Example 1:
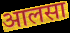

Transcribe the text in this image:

आलसा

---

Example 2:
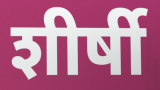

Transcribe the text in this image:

शीर्षी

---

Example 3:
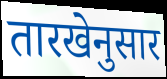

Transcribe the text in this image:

तारखेनुसार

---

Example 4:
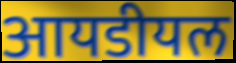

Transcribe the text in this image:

आयडीयल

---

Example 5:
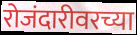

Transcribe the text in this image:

रोजंदारीवरच्या